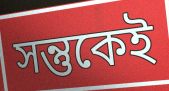
সন্তুকেই